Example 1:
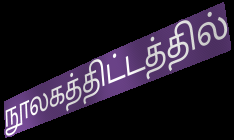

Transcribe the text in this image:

நூலகத்திட்டத்தில்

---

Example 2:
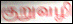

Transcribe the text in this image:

குறுவழி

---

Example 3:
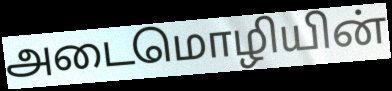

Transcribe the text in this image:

அடைமொழியின்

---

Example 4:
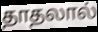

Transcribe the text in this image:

தாதலால்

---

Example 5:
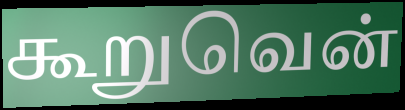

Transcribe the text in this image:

கூறுவென்